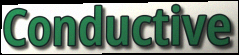
Conductive